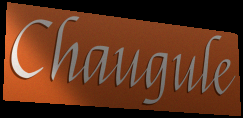
Chaugule